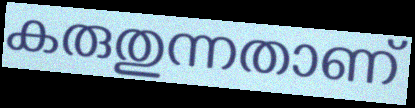
കരുതുന്നതാണ്